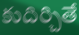
కుదిర్చితే